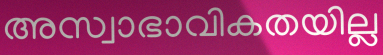
അസ്വാഭാവികതയില്ല